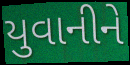
યુવાનીને